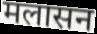
मलासन